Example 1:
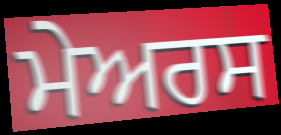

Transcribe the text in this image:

ਮੇਅਰਸ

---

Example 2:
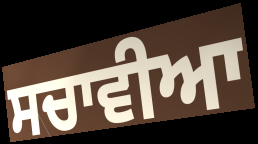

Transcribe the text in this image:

ਸਚਾਵੀਆ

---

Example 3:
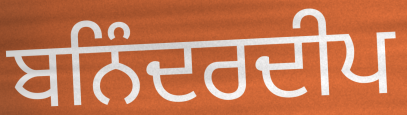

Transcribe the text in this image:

ਬਨਿੰਦਰਦੀਪ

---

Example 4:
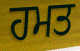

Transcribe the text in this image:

ਹਮਤ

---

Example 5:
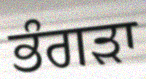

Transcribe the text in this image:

ਭੰਗੜਾ